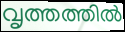
വൃത്തത്തിൽ